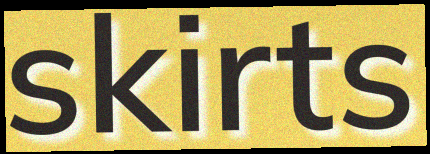
skirts